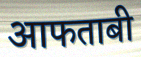
आफताबी